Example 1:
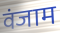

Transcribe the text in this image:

वंजाम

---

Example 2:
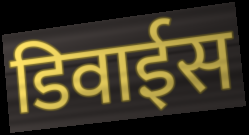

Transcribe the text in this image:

डिवाईस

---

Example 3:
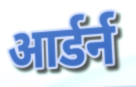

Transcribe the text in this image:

आर्डर्न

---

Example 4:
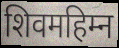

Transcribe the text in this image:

शिवमहिम्न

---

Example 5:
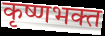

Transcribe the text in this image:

कृष्णभक्त